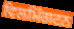
ਵਿਲਮਿੰਗਟਨ